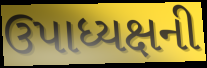
ઉપાધ્યક્ષની